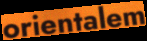
orientalem